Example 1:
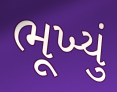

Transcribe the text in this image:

ભૂખ્યું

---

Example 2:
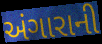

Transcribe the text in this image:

અંગારાની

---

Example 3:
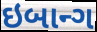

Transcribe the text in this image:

ઇબાન્ગ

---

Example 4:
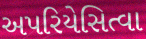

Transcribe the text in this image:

અપરિયેસિત્વા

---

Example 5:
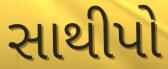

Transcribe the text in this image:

સાથીપો